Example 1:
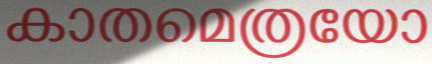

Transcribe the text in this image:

കാതമെത്രയോ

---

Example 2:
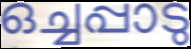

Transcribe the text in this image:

ഒച്ചപ്പാടു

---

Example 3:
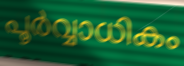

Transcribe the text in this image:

പൂർവ്വാധികം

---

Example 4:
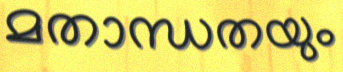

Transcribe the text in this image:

മതാന്ധതയും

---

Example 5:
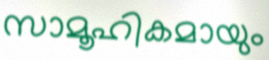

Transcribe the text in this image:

സാമൂഹികമായും